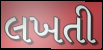
લખતી